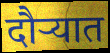
दौऱ्यात